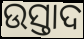
ଉସ୍ତାଦ